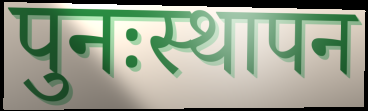
पुनःस्थापन